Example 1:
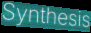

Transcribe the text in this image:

Synthesis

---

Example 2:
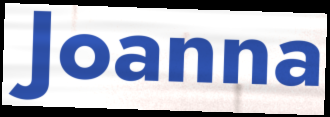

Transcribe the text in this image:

Joanna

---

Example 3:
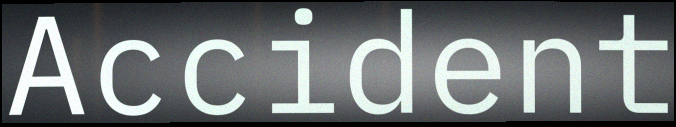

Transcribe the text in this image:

Accident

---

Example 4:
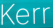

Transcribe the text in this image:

Kerr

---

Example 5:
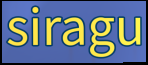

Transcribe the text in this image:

siragu